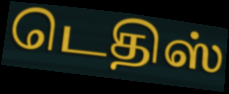
டெதிஸ்